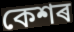
কেশৰ